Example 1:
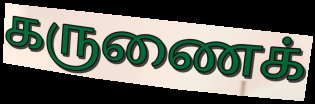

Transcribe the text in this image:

கருணைக்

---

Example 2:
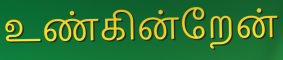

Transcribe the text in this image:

உண்கின்றேன்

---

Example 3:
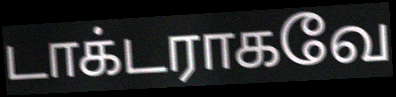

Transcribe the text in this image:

டாக்டராகவே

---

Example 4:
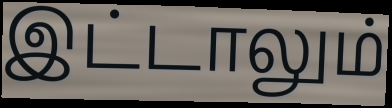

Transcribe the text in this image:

இட்டாலும்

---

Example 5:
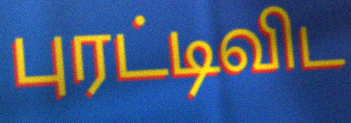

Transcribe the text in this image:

புரட்டிவிட